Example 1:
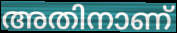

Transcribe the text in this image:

അതിനാണ്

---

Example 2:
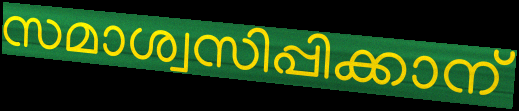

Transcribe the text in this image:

സമാശ്വസിപ്പിക്കാന്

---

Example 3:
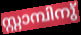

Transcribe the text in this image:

സ്റ്റാമ്പിനു്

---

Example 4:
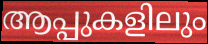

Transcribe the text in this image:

ആപ്പുകളിലും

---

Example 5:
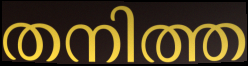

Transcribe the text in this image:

തനിത്ത